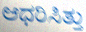
ಆಧರಿಸಿತ್ತು